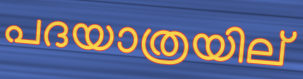
പദയാത്രയില്